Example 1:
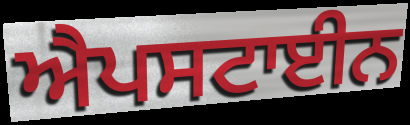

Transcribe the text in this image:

ਐਪਸਟਾਈਨ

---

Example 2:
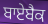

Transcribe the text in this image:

ਬਾਏਬੈਕ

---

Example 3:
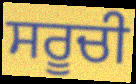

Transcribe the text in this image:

ਸਰੂਚੀ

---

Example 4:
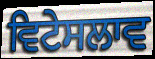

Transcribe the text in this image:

ਵਿਟੇਸਲਾਵ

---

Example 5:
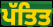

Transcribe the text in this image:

ਪੱਤਿਤ